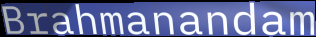
Brahmanandam